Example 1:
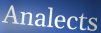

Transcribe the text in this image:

Analects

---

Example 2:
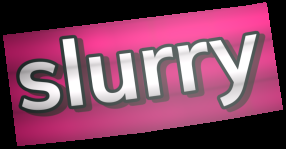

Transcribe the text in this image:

slurry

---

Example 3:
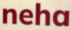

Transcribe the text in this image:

neha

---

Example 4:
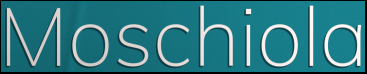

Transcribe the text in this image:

Moschiola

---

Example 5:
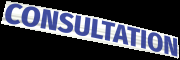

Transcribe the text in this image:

CONSULTATION